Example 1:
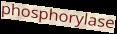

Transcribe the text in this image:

phosphorylase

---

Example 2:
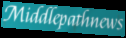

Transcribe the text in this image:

Middlepathnews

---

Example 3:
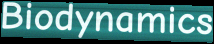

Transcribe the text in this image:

Biodynamics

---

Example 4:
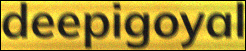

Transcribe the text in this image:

deepigoyal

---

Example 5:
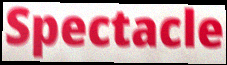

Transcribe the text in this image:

Spectacle